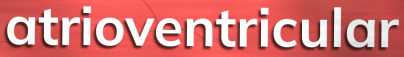
atrioventricular